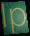
lp